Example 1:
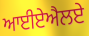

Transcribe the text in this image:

ਆਈਏਐਲਏ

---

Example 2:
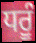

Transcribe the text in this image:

ਧਰੂੰ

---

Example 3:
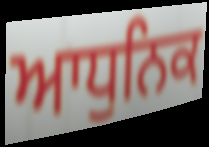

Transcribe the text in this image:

ਆਧੁਨਿਕ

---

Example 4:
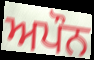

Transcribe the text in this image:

ਅਪੌਨ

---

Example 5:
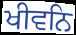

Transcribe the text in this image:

ਖੀਵਨਿ